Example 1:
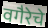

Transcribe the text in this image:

वगैरेचे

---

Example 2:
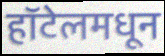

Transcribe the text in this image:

हॉटेलमधून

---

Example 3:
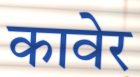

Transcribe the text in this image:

कावेर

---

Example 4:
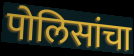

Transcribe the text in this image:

पोलिसांचा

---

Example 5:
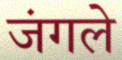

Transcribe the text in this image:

जंगले